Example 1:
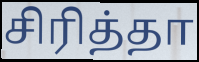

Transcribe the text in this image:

சிரித்தா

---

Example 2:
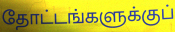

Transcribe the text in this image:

தோட்டங்களுக்குப்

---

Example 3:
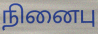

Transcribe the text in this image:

நினைபு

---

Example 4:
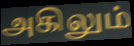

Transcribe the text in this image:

அகிலும்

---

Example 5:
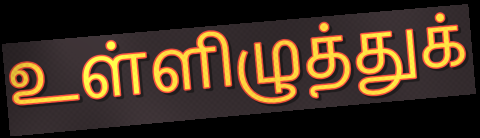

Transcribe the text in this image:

உள்ளிழுத்துக்